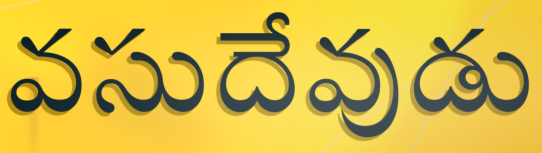
వసుదేవుడు